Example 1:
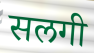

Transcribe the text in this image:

सलगी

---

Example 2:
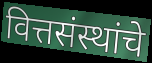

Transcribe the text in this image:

वित्तसंस्थांचे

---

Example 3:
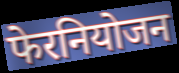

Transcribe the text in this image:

फेरनियोजन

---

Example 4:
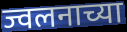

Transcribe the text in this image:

ज्वलनाच्या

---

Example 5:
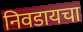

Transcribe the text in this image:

निवडायचा